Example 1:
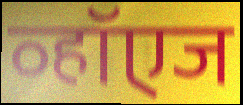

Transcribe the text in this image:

व्हॉएज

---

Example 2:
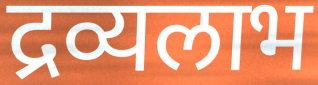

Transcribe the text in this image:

द्रव्यलाभ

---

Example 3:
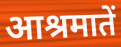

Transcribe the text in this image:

आश्रमातें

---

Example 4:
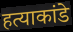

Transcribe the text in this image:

हत्याकांडे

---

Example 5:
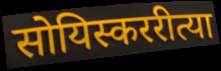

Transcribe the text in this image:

सोयिस्कररीत्या